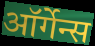
ऑर्गेन्स